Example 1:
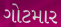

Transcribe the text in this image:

ગોટમાર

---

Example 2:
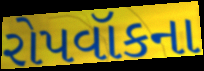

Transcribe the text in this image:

રોપવૉકના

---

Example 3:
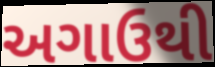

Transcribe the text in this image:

અગાઉથી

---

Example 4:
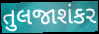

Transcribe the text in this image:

તુલજાશંકર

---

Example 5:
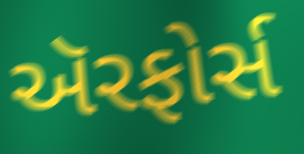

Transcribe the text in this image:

ઍરફોર્સ